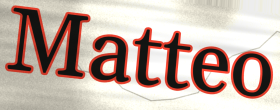
Matteo